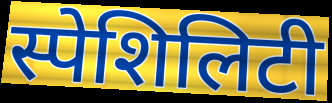
स्पेशिलिटी